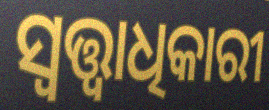
ସ୍ବତ୍ତ୍ବାଧିକାରୀ